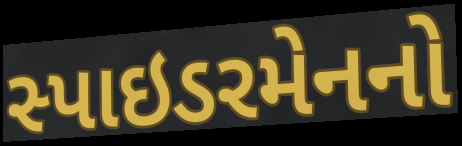
સ્પાઇડરમેનનો